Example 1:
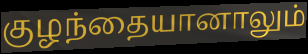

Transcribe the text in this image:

குழந்தையானாலும்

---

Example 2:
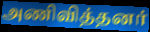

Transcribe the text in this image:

அணிவித்தனர்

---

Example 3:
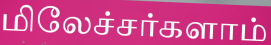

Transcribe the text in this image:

மிலேச்சர்களாம்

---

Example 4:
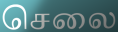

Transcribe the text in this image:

செலை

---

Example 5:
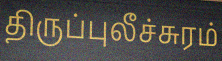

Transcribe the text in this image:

திருப்புலீச்சுரம்